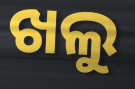
ଖଲୁ